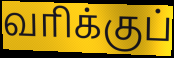
வரிக்குப்